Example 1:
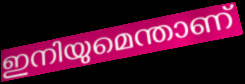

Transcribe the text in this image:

ഇനിയുമെന്താണ്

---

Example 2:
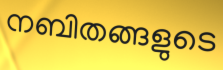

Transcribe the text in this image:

നബിതങ്ങളുടെ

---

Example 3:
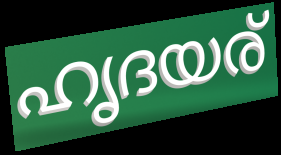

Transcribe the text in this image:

ഹൃദയര്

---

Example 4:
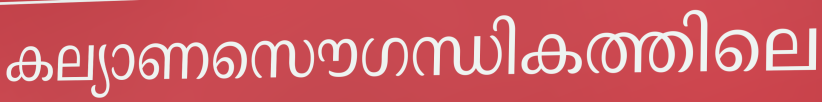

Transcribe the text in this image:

കല്യാണസൌഗന്ധികത്തിലെ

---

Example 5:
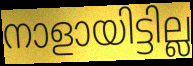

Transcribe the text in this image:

നാളായിട്ടില്ല